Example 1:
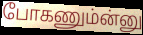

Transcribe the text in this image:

போகணும்ன்னு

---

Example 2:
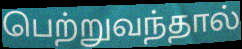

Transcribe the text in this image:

பெற்றுவந்தால்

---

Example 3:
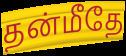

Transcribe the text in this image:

தன்மீதே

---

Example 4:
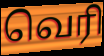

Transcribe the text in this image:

வெரி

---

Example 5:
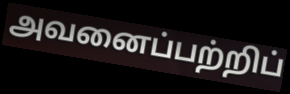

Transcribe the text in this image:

அவனைப்பற்றிப்